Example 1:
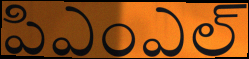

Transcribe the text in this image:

పిఎంఎల్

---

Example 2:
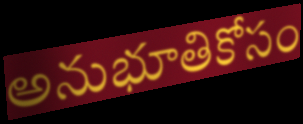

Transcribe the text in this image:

అనుభూతికోసం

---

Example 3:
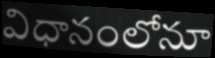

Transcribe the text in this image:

విధానంలోనూ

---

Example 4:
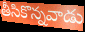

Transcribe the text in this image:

తీసికొన్నవాడు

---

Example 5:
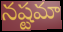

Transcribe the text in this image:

నష్టమా